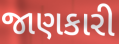
જાણકારી